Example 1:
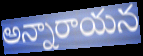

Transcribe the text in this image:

అన్నారాయన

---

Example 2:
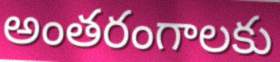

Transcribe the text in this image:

అంతరంగాలకు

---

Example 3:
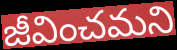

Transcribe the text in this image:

జీవించమని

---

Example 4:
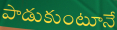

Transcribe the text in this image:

పాడుకుంటూనే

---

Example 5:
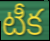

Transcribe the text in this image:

టీక